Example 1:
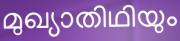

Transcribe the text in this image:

മുഖ്യാതിഥിയും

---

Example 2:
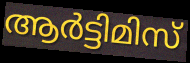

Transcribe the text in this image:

ആർട്ടിമിസ്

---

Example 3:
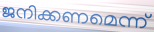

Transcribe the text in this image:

ജനിക്കണമെന്ന്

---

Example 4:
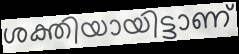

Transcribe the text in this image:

ശക്തിയായിട്ടാണ്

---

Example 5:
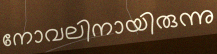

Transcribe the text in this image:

നോവലിനായിരുന്നു